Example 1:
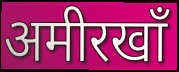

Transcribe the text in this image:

अमीरखाँ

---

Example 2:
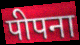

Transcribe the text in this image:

पीपना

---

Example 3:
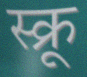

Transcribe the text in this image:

स्क्रू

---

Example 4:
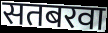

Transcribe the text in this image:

सतबरवा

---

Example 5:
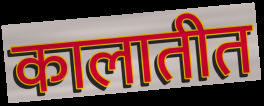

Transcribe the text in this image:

कालातीत